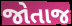
જોતાજ